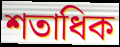
শতাধিক